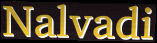
Nalvadi